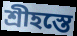
শ্রীহস্তে